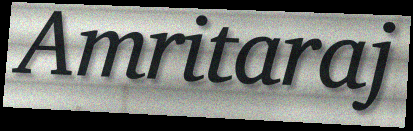
Amritaraj